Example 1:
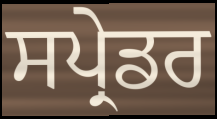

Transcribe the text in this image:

ਸਪ੍ਰੇਡਰ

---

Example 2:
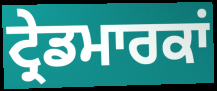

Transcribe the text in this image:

ਟ੍ਰੇਡਮਾਰਕਾਂ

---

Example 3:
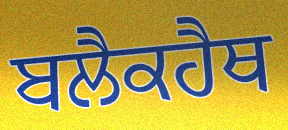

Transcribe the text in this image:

ਬਲੈਕਹੈਥ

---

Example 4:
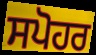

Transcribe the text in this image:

ਸਪੋਹਰ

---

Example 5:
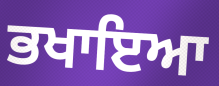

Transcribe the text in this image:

ਭਖਾਇਆ